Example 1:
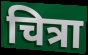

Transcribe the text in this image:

चित्रा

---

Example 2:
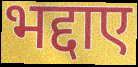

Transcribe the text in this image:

भद्दाए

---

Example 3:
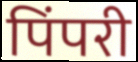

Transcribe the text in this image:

पिंपरी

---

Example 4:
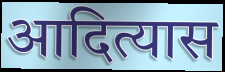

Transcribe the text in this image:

आदित्यास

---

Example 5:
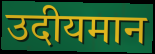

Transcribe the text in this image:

उदीयमान